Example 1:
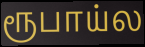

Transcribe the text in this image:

ரூபாய்ல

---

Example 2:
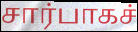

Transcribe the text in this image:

சார்பாகச்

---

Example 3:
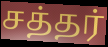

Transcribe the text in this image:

சத்தர்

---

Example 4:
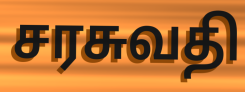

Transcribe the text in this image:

சரசுவதி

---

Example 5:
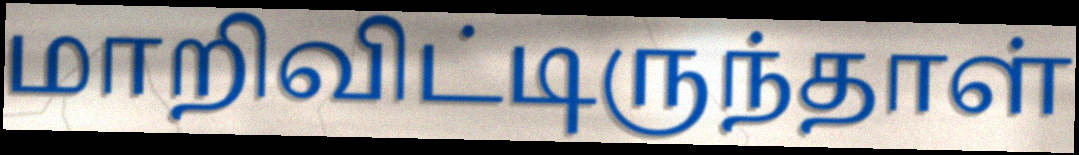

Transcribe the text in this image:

மாறிவிட்டிருந்தாள்